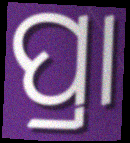
ପ୍ରା